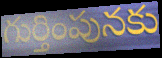
గుర్తింపునకు